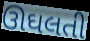
ઊઘલતી